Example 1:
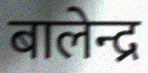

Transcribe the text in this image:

बालेन्द्र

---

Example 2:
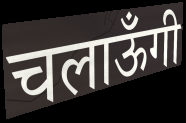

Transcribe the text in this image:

चलाऊँगी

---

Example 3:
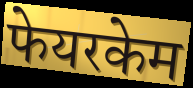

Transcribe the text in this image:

फेयरकेम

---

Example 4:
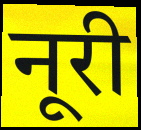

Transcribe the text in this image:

नूरी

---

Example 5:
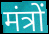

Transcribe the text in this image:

मंत्रों